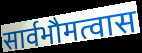
सार्वभौमत्वास